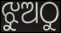
ଝୁଅଠୁ